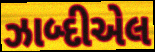
ઝાબ્દીએલ